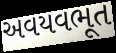
અવયવભૂત